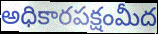
అధికారపక్షంమీద